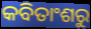
କବିତାଂଶରୁ